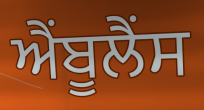
ਐਂਬੂਲੈਂਸ